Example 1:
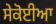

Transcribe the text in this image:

ਸੇਕੋਈਆ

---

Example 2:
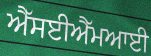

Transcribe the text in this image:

ਐੱਸਈਐੱਮਆਈ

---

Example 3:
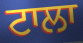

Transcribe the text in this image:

ਟਾਲਾ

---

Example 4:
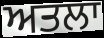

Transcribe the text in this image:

ਅਤਲਾ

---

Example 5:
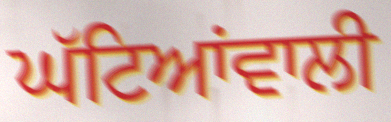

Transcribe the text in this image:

ਘੱਟਿਆਂਵਾਲੀ